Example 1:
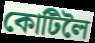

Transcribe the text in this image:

কোটিলৈ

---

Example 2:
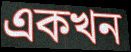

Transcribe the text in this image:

একখন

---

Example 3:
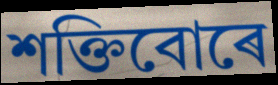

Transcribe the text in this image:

শক্তিবোৰে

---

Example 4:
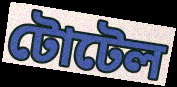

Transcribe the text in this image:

টোটেল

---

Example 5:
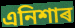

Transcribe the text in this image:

এনিশাৰ